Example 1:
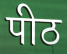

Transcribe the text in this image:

पीठ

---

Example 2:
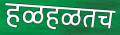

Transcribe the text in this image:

हळहळतच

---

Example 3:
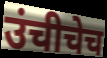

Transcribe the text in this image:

उंचीचेच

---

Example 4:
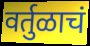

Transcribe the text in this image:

वर्तुळाचं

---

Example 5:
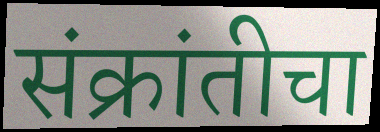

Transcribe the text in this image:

संक्रांतीचा